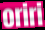
oriri